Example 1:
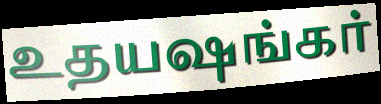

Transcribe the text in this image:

உதயஷங்கர்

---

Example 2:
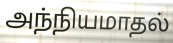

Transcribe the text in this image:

அந்நியமாதல்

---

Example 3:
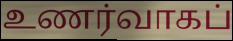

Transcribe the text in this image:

உணர்வாகப்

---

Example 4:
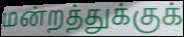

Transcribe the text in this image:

மன்றத்துக்குக்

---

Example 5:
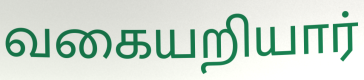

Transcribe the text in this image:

வகையறியார்